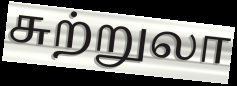
சுற்றுலா